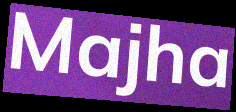
Majha